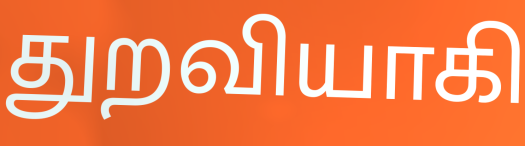
துறவியாகி